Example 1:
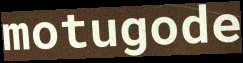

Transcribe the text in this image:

motugode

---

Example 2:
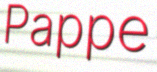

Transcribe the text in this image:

Pappe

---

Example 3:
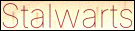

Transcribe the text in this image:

Stalwarts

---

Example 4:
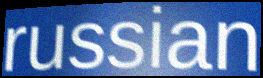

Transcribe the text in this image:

russian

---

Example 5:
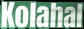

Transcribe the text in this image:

Kolahal